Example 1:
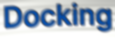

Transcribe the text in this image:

Docking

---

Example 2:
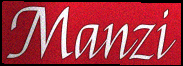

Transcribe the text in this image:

Manzi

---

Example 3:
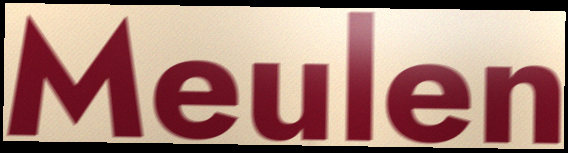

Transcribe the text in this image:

Meulen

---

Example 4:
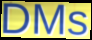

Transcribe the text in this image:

DMs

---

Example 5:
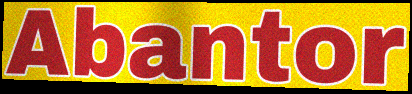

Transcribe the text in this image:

Abantor